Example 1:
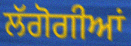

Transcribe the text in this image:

ਲੱਗੋਗੀਆਂ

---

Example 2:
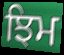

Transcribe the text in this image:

ਝਿਮ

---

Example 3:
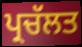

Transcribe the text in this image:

ਪ੍ਰਚੱਲਤ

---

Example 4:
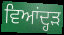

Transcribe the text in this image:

ਵਿਆਂਦ੍ਹੜ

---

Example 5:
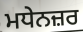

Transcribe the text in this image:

ਮਧੇਨਜ਼ਰ